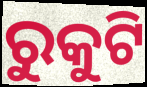
ରୁକୁଟି